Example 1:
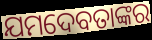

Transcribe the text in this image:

ଯମଦେବତାଙ୍କର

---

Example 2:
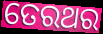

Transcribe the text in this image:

ତେରଥର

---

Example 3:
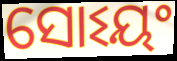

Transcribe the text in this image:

ସୋଽୟଂ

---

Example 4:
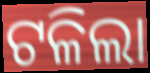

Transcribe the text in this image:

ଟଳିଲା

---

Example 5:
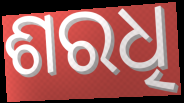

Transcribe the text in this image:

ଶରଧି